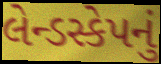
લેન્ડસ્કેપનું